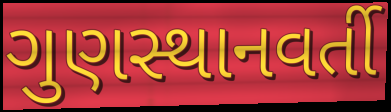
ગુણસ્થાનવર્તી